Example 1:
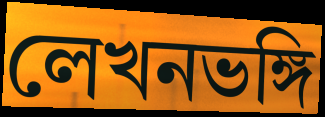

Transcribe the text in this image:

লেখনভঙ্গি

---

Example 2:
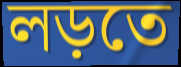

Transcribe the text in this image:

লড়তে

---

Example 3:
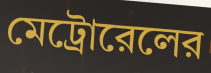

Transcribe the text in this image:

মেট্রোরেলের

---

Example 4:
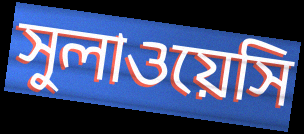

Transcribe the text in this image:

সুলাওয়েসি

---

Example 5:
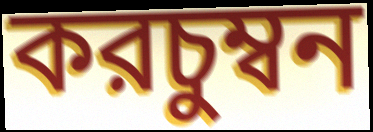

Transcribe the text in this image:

করচুম্বন